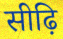
सीढ़ि